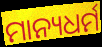
ମାନ୍ୟଧର୍ମ